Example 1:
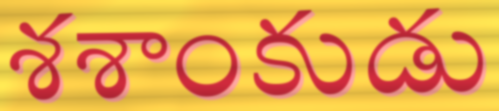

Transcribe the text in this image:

శశాంకుడు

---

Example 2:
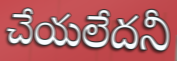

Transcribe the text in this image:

చేయలేదనీ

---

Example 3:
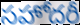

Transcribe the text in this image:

సహోదరీ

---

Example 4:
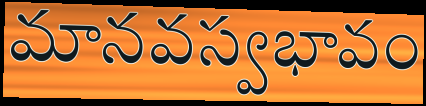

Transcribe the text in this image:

మానవస్వభావం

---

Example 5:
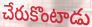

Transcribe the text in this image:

చేరుకొంటాడు